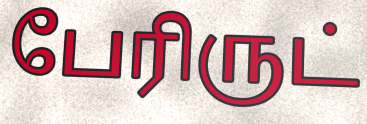
பேரிருட்